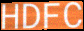
HDFC